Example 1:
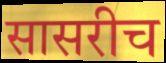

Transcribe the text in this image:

सासरीच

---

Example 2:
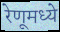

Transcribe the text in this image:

रेणूमध्ये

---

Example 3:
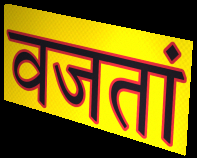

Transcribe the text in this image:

वजतां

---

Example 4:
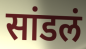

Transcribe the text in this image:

सांडलं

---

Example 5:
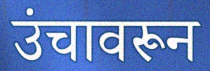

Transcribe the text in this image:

उंचावरून